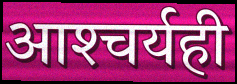
आश्‍चर्यही